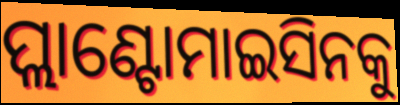
ପ୍ଲାଣ୍ଟୋମାଇସିନକୁ